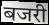
बजरी